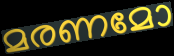
മരണമോ